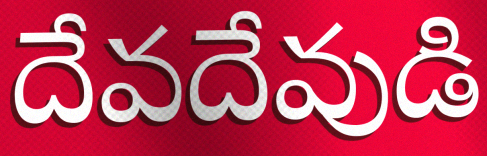
దేవదేవుడి